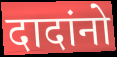
दादांनो